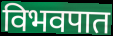
विभवपात